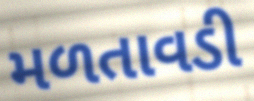
મળતાવડી